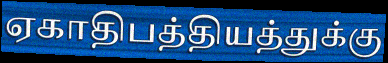
ஏகாதிபத்தியத்துக்கு